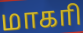
மாகரி